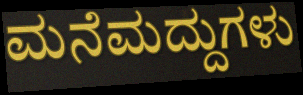
ಮನೆಮದ್ದುಗಳು